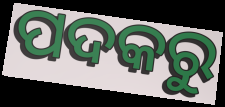
ପଦକରୁ